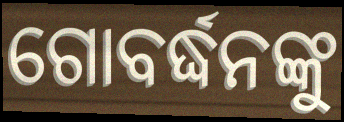
ଗୋବର୍ଦ୍ଧନଙ୍କୁ